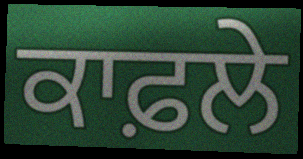
ਕਾਫ਼ਲੇ